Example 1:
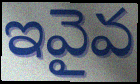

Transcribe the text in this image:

ఇవైవ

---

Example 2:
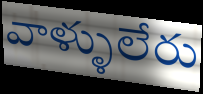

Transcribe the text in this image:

వాళ్ళులేరు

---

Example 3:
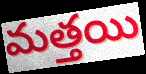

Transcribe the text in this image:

మత్తయి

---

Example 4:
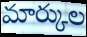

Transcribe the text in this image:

మార్కుల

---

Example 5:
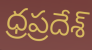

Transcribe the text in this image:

ధ్రప్రదేశ్